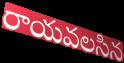
రాయవలసిన